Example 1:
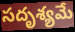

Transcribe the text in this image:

సదృశ్యమే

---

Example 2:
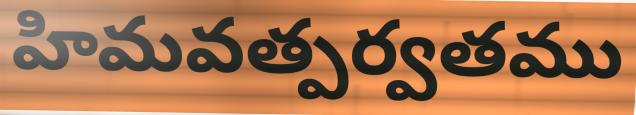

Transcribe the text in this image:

హిమవత్పర్వతము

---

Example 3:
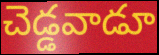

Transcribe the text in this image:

చెడ్డవాడూ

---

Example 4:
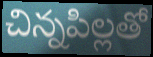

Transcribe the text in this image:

చిన్నపిల్లతో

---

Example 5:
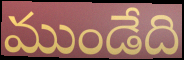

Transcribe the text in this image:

ముండేది